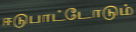
ஈடுபாட்டோடும்